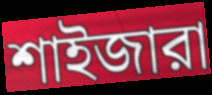
শাইজারা